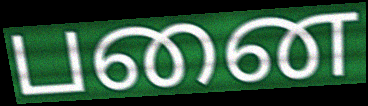
பனை